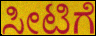
ಸೀಟಿಗೆ